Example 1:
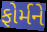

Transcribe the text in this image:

ફોર્મને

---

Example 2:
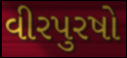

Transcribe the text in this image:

વીરપુરષો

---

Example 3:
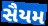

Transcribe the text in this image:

સૈયમ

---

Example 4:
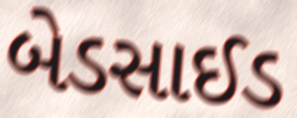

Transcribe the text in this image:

બેડસાઈડ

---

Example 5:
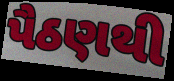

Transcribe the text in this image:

પૈઠણથી